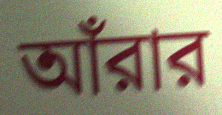
আঁরার